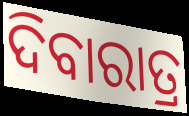
ଦିବାରାତ୍ର